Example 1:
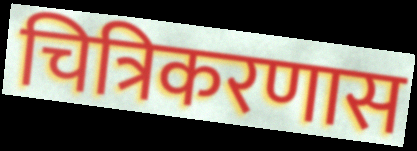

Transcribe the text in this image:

चित्रिकरणास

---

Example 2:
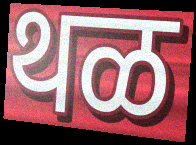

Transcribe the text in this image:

थळ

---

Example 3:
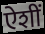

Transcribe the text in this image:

ऐशीं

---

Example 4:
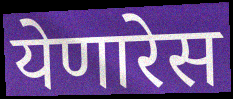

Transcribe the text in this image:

येणारेस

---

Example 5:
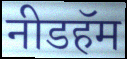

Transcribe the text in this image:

नीडहॅम